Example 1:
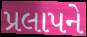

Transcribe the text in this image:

પ્રલાપને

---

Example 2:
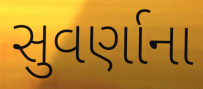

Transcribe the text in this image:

સુવર્ણાના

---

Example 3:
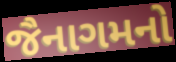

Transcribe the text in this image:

જૈનાગમનો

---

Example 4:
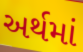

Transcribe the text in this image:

અર્થમાં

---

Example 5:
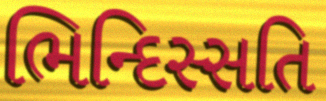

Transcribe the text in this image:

ભિન્દિસ્સતિ